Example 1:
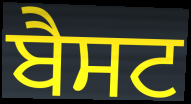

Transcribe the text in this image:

ਬੈਸਟ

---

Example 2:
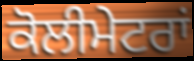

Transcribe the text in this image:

ਕੋਲੀਮੇਟਰਾਂ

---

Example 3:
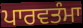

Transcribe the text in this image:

ਪਾਰਵਤੰਮਾ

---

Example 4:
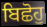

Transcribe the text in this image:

ਬਿਛੋਹੁ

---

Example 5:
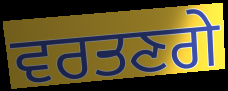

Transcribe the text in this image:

ਵਰਤਣਗੇ